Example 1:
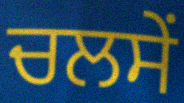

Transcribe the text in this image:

ਚਲਸੇਂ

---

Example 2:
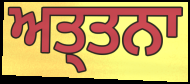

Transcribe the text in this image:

ਅਤ੍ਤਨਾ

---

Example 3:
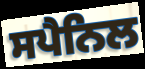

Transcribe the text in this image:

ਸਪੈਨਿਲ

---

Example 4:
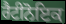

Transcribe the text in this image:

ਰੈਟੀਨੋਇਕ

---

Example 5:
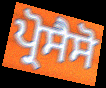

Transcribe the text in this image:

ਪ੍ਰੋਸੈਸੋ